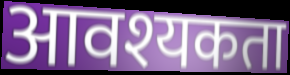
आवश्‍यकता